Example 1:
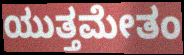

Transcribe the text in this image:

ಯುತ್ತಮೇತಂ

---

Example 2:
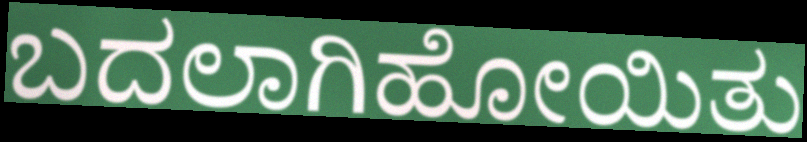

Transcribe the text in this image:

ಬದಲಾಗಿಹೋಯಿತು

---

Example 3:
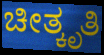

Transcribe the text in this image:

ಚೀತ್ಕೃತಿ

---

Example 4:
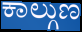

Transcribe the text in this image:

ಕಾಲ್ಗುಣ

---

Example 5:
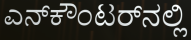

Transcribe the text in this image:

ಎನ್‌ಕೌಂಟರ್‌ನಲ್ಲಿ